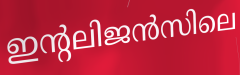
ഇന്റലിജൻസിലെ